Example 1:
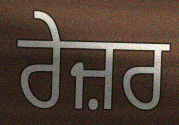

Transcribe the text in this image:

ਰੇਜ਼ਰ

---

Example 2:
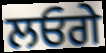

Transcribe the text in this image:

ਲਓਗੇ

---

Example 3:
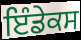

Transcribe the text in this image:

ਇੰਡੇਕਸ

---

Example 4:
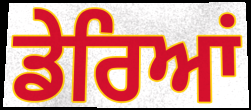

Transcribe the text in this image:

ਡੇਰਿਆਂ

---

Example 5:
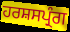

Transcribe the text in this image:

ਹਰਸ਼ਸਪ੍ਰੰਗ